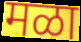
मळा